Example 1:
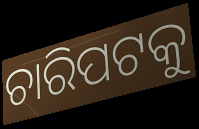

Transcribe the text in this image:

ଚାରିପଟକୁ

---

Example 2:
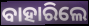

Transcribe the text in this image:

ବାହାରିଲେ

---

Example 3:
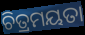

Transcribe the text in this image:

ଚିତ୍ରମୟତା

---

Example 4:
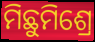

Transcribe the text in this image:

ମିଛୁମିଶ୍ରେ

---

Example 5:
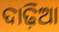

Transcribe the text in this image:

ଦାଢ଼ିଆ